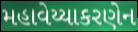
મહાવેય્યાકરણેન